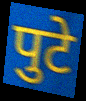
पुटे